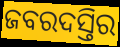
ଜବରଦସ୍ତିର